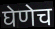
घेणेच